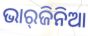
ଭାର୍‌ଜିନିଆ